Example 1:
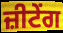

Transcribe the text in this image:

ਜ਼ੀਟੇਂਗ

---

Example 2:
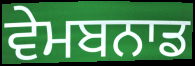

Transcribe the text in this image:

ਵੇਮਬਨਾਡ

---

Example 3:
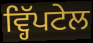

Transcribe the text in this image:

ਵ੍ਹਿੱਪਟੇਲ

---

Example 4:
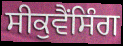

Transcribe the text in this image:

ਸੀਕੁਵੈਂਸਿੰਗ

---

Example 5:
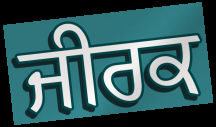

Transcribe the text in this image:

ਜੀਰਕ